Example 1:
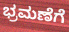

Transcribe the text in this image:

ಭ್ರಮಣೆಗೆ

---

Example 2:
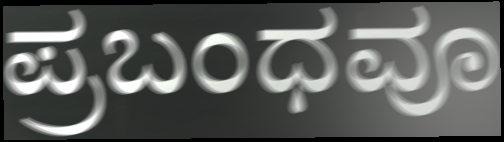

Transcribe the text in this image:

ಪ್ರಬಂಧವೂ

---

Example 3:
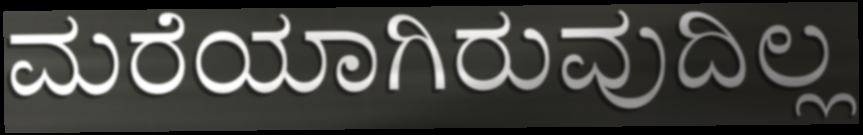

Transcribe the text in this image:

ಮರೆಯಾಗಿರುವುದಿಲ್ಲ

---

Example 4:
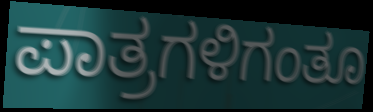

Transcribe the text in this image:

ಪಾತ್ರಗಳಿಗಂತೂ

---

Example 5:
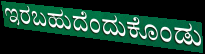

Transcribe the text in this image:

ಇರಬಹುದೆಂದುಕೊಂಡು